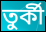
তুৰ্কী